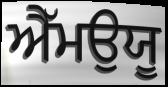
ਐੱਮਉਯੂ